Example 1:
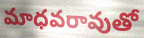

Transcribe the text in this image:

మాధవరావుతో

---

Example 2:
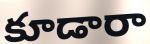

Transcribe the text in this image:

కూడారా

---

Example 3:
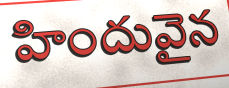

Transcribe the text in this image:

హిందువైన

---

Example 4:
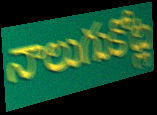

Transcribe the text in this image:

నాలుగుకోట్ల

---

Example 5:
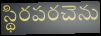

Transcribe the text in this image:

స్థిరపరచెను